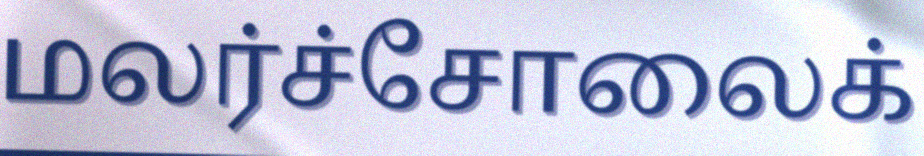
மலர்ச்சோலைக்